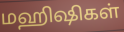
மஹிஷிகள்